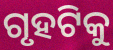
ଗୃହଟିକୁ